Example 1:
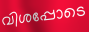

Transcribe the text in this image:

വിശപ്പോടെ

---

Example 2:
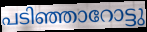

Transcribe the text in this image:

പടിഞ്ഞാറോട്ടു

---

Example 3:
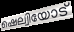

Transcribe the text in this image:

ഷെല്വിയോട്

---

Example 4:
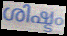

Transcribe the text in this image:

ശിഷ്ടം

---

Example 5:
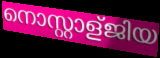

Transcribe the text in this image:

നൊസ്റ്റാള്ജിയ